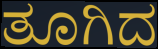
ತೂಗಿದ